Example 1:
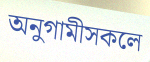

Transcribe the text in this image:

অনুগামীসকলে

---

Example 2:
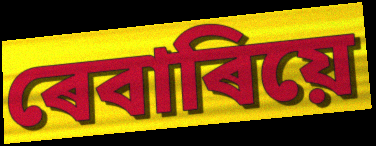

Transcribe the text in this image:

ৰেবাৰিয়ে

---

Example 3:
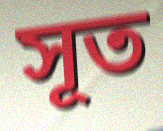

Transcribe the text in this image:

সূত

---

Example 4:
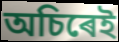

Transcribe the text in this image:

অচিৰেই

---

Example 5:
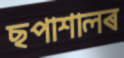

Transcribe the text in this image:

ছপাশালৰ